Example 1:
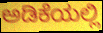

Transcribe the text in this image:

ಅಡಿಕೆಯಲ್ಲಿ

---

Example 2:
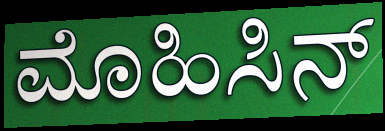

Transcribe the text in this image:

ಮೊಹಿಸಿನ್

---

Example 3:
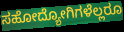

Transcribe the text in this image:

ಸಹೋದ್ಯೋಗಿಗಳೆಲ್ಲರೂ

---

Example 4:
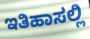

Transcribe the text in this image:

ಇತಿಹಾಸಲ್ಲಿ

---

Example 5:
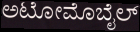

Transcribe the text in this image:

ಅಟೋಮೊಬೈಲ್